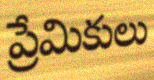
ప్రేమికులు